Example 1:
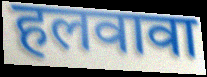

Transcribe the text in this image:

हलवावा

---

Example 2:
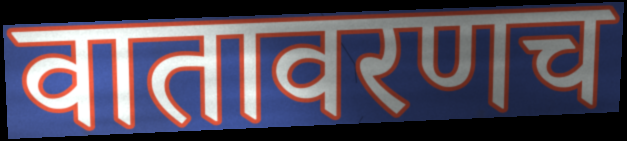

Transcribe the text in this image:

वातावरणच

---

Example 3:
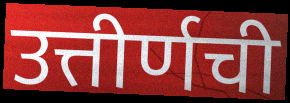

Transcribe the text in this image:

उत्तीर्णची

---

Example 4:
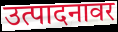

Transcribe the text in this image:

उत्पादनावर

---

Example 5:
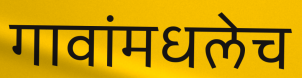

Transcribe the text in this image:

गावांमधलेच